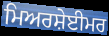
ਮਿਅਰਸ਼ੇਈਮਰ